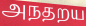
அநதறய